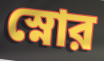
স্নোর